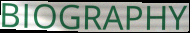
BIOGRAPHY